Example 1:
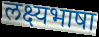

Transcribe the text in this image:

लक्ष्यभाषा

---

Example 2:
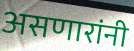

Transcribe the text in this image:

असणारांनी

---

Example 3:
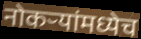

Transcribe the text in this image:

नोकऱ्यांमध्येच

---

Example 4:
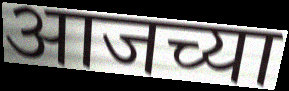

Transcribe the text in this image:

आजच्या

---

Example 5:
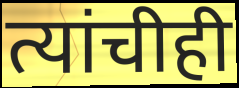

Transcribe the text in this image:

त्यांचीही